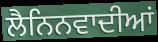
ਲੈਨਿਨਵਾਦੀਆਂ